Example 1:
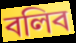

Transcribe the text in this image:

বলিব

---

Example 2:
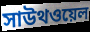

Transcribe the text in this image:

সাউথওয়েল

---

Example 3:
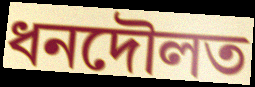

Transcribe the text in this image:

ধনদৌলত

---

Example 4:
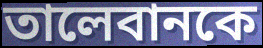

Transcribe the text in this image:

তালেবানকে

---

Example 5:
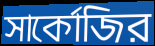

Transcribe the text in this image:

সার্কোজির